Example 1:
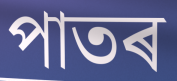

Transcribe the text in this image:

পাতৰ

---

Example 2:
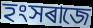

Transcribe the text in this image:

হংসৰাজে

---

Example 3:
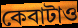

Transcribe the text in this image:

কেবাটাও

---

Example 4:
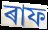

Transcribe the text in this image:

ৰাফ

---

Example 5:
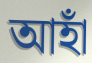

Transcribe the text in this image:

আহাঁ